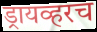
ड्रायव्हरच